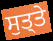
ਸੁਤ੍ਤੇ